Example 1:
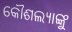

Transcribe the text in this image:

କୌଶଲ୍ୟାଙ୍କୁ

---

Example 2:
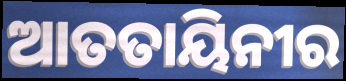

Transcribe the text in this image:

ଆତତାୟିନୀର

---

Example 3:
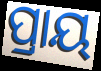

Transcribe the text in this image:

ପ୍ରାୟ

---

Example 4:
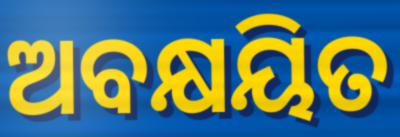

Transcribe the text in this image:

ଅବକ୍ଷୟିତ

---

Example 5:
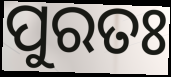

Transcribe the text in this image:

ପୁରତଃ